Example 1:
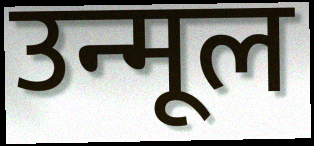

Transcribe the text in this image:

उन्मूल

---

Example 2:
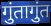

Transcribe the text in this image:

गुंतागुंत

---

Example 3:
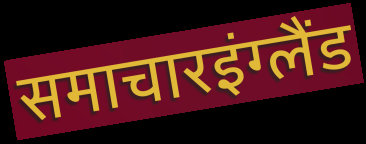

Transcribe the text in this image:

समाचारइंग्लैंड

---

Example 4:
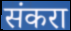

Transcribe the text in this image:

संकरा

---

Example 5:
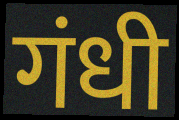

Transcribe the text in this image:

गंधी